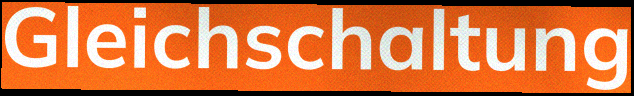
Gleichschaltung